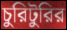
চুরিটুরির